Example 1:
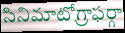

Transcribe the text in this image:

సినిమాటోగ్రాఫర్గా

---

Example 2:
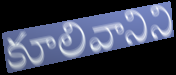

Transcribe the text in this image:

కూలివానిని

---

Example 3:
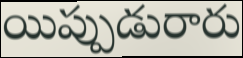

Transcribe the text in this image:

యిప్పుడురారు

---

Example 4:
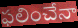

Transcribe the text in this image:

ఫలించేనా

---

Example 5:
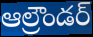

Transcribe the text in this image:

ఆల్రౌండర్